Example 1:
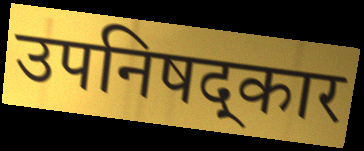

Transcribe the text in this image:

उपनिषद्कार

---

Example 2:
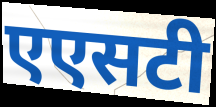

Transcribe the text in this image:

एएसटी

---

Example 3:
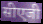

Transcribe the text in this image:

सीएजी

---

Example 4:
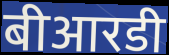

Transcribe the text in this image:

बीआरडी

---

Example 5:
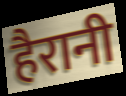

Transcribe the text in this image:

हैरानी